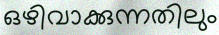
ഒഴിവാക്കുന്നതിലും